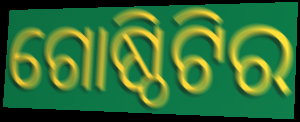
ଗୋଷ୍ଠିଟିର